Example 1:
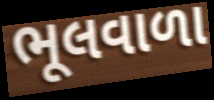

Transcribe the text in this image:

ભૂલવાળા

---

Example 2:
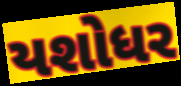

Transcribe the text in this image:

યશોધર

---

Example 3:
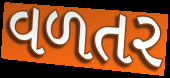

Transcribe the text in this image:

વળતર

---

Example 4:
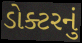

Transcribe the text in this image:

ડોક્ટરનું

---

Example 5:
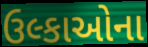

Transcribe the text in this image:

ઉલ્કાઓના